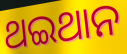
ଥଇଥାନ